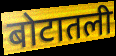
बोटातली